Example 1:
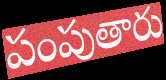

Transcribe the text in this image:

పంపుతారు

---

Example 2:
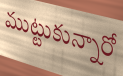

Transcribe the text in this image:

ముట్టుకున్నారో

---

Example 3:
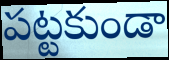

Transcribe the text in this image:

పట్టకుండా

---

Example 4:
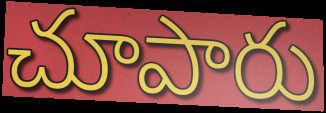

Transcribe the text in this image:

చూపారు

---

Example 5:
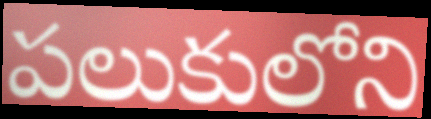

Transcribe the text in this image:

పలుకులోని